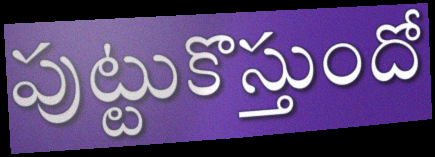
పుట్టుకొస్తుందో